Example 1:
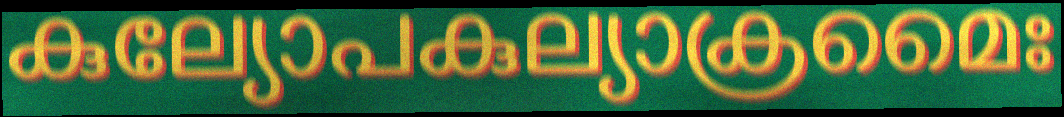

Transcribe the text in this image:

കുല്യോപകുല്യാക്രമൈഃ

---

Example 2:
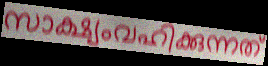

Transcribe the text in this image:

സാക്ഷ്യംവഹിക്കുന്നത്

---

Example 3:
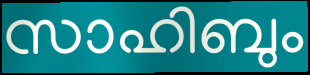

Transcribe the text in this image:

സാഹിബും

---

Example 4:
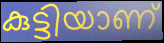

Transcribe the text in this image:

കുട്ടിയാണ്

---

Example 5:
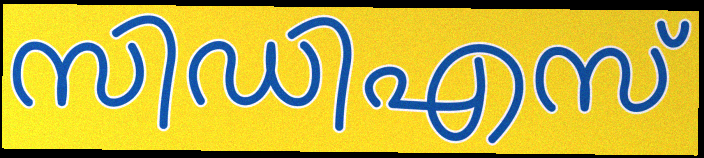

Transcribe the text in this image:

സിഡിഎസ്